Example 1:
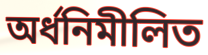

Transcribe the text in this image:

অর্ধনিমীলিত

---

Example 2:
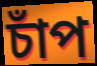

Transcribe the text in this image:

চাঁপ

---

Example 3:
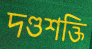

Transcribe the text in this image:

দণ্ডশক্তি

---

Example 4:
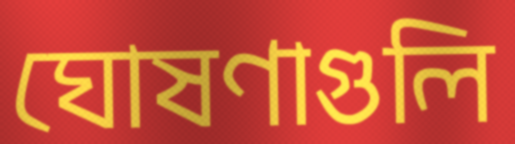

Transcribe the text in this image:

ঘোষণাগুলি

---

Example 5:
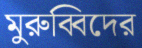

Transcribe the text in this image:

মুরুব্বিদের